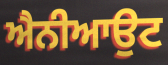
ਐਨੀਆਉਟ